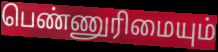
பெண்ணுரிமையும்